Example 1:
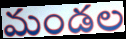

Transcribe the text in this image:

మండల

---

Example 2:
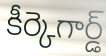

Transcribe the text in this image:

కీర్కెగార్డ్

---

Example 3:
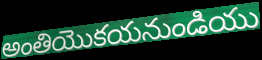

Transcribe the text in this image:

అంతియొకయనుండియు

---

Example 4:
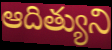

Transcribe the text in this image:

ఆదిత్యుని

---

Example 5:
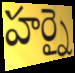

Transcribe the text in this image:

హర్నై